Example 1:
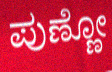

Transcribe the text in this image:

ಪುಣ್ಣೋ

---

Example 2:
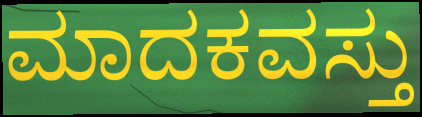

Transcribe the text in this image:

ಮಾದಕವಸ್ತು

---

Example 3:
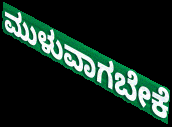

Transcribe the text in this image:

ಮುಳುವಾಗಬೇಕೆ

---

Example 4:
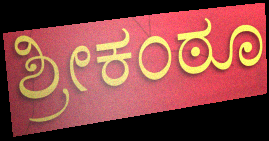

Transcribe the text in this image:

ಶ್ರೀಕಂಠೂ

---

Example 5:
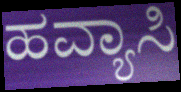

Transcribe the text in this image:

ಹವ್ಯಾಸಿ